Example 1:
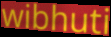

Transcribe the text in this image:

wibhuti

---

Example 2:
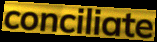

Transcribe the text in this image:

conciliate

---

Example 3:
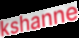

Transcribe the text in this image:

kshanne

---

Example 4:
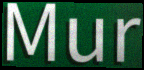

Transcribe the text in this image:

Mur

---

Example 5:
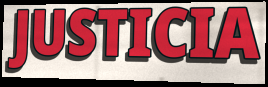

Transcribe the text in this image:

JUSTICIA